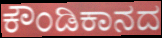
ಕೌಂಡಿಕಾನದ